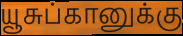
யூசுப்கானுக்கு